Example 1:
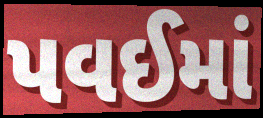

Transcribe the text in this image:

પવઈમાં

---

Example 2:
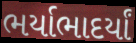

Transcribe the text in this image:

ભર્યાભાદર્યાં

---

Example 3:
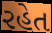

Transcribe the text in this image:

રહેત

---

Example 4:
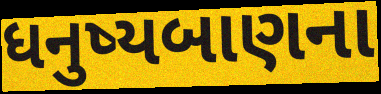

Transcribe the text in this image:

ધનુષ્યબાણના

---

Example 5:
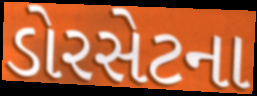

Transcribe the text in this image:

ડોરસેટના